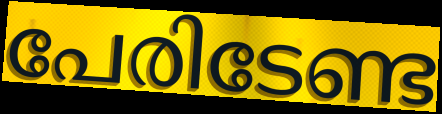
പേരിടേണ്ട